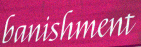
banishment